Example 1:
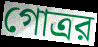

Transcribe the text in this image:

গোত্রর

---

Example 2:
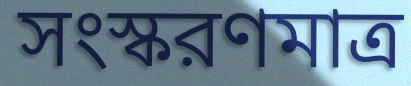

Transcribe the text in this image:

সংস্করণমাত্র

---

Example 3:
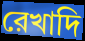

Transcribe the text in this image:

রেখাদি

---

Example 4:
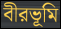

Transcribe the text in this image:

বীরভূমি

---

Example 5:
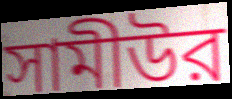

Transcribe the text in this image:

সামীউর